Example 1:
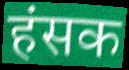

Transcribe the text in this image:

हंसक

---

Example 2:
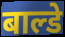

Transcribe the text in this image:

बाल्डे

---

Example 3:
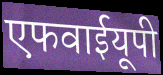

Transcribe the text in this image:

एफवाईयूपी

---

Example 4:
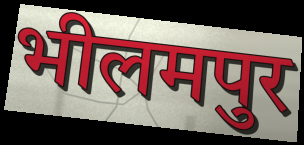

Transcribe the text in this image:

भीलमपुर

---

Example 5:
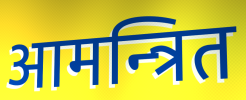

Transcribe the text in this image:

आमन्त्रित